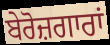
ਬੇਰੋਜ਼ਗਾਰਾਂ